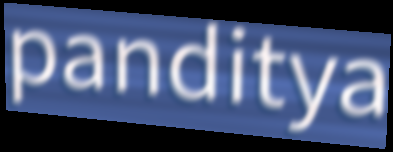
panditya